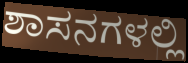
ಶಾಸನಗಳಲ್ಲಿ